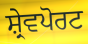
ਸ਼੍ਰੇਵਪੋਰਟ